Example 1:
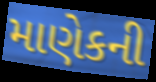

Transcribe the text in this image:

માણેકની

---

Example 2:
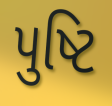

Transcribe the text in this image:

પુષ્ટિ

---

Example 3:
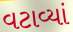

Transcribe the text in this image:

વટાવ્યાં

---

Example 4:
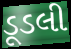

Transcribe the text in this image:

ડૂડલી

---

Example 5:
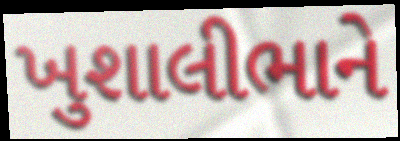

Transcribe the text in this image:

ખુશાલીભાને